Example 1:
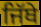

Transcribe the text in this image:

ਜਿੱਥੇ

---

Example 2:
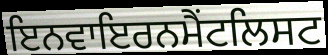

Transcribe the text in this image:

ਇਨਵਾਇਰਨਮੈਂਟਲਿਸਟ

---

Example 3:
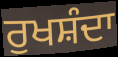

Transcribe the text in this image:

ਰੁਖਸ਼ੰਦਾ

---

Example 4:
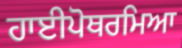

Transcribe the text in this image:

ਹਾਈਪੋਥਰਮਿਆ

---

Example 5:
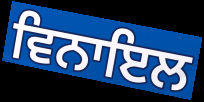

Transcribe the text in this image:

ਵਿਨਾਇਲ